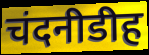
चंदनीडीह